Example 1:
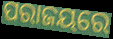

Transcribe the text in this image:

ପରାଜୟରେ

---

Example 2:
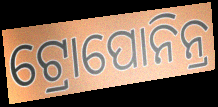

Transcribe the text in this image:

ଟ୍ରୋପୋନିନ୍ର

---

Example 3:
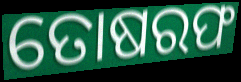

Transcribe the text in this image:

ତୋଷରଫ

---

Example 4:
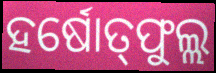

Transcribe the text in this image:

ହର୍ଷୋତ୍‌ଫୁଲ୍ଲ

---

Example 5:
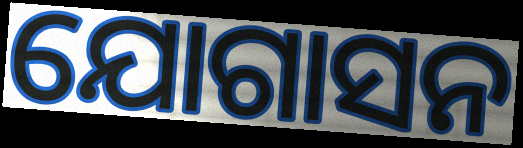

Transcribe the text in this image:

ଯୋଗାସନ